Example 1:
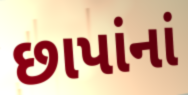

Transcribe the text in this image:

છાપાંનાં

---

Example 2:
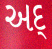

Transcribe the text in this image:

અદ્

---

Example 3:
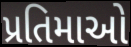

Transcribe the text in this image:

પ્રતિમાઓ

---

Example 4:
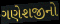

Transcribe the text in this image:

ગણેશજીનો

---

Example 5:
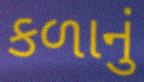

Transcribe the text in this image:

કળાનું